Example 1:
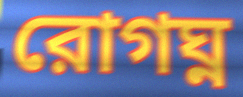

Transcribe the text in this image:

রোগঘ্ন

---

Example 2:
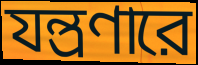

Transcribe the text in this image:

যন্ত্রণারে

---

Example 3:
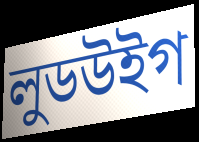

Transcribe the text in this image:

লুডউইগ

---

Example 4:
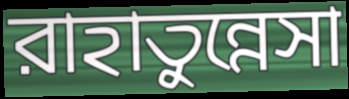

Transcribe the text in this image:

রাহাতুন্নেসা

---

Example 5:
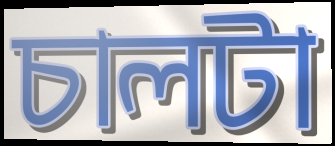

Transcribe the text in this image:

চালটা